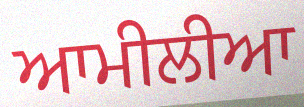
ਆਮੀਲੀਆ